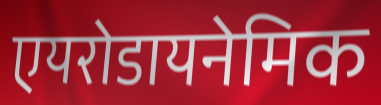
एयरोडायनेमिक